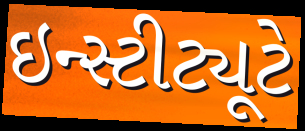
ઇન્સ્ટીટ્યૂટે